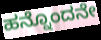
ಹನ್ನೊಂದನೇ